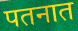
पतनात